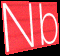
Nb